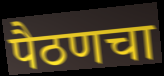
पैठणचा